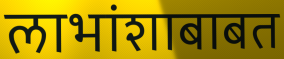
लाभांशाबाबत